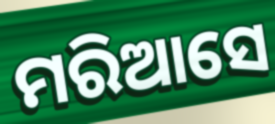
ମରିଆସେ